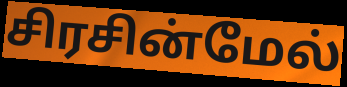
சிரசின்மேல்